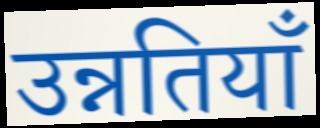
उन्नतियाँ